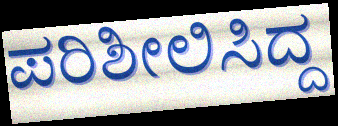
ಪರಿಶೀಲಿಸಿದ್ದ